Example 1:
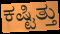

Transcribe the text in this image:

ಕಷ್ಟಿತ್ತು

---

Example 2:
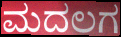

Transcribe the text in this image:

ಮದಲಗ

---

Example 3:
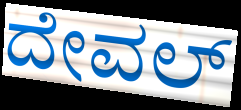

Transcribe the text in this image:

ದೇವಲ್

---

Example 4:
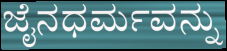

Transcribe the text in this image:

ಜೈನಧರ್ಮವನ್ನು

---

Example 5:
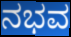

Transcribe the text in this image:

ನಭವ